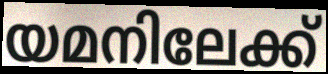
യമനിലേക്ക്